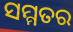
ସମ୍ମତର